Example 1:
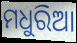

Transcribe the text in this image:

ମଧୁରିଆ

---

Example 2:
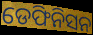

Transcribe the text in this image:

ଡେଫିନିସନ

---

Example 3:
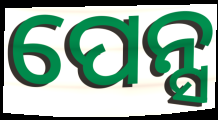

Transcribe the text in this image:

ପେନ୍ସ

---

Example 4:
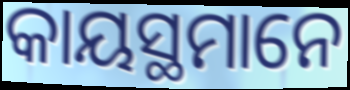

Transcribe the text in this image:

କାୟସ୍ଥମାନେ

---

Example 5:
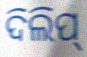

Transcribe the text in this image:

ଦିଲିପ୍